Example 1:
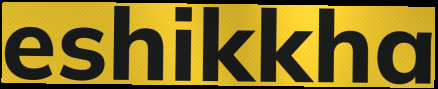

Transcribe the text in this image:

eshikkha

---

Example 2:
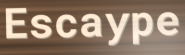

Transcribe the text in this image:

Escaype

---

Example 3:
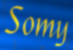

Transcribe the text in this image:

Somy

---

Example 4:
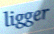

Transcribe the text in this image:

ligger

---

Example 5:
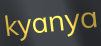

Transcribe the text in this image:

kyanya